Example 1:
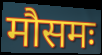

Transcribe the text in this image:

मौसमः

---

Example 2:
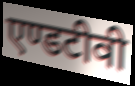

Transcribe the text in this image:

एण्डटीवी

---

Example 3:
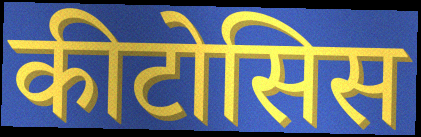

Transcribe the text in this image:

कीटोसिस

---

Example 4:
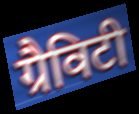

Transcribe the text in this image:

ग्रैविटी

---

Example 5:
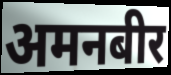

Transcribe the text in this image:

अमनबीर